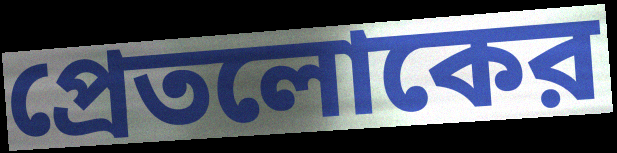
প্রেতলোকের